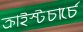
ক্রাইস্টচার্চে